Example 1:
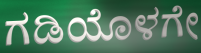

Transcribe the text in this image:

ಗಡಿಯೊಳಗೇ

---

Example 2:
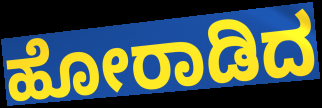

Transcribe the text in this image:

ಹೋರಾಡಿದ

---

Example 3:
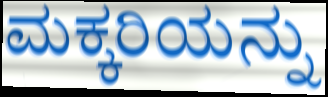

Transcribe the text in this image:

ಮಕ್ಕರಿಯನ್ನು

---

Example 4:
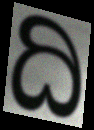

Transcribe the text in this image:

ದಿ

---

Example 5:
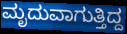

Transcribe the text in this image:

ಮೃದುವಾಗುತ್ತಿದ್ದ